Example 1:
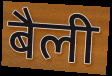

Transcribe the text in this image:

बैली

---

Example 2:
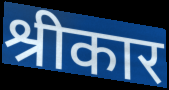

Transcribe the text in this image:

श्रीकार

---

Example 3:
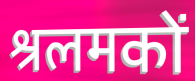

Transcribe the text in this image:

श्रलमकों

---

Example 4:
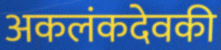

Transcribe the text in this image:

अकलंकदेवकी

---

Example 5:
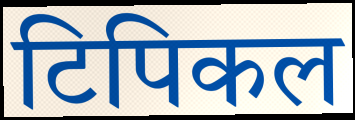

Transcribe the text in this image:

टिपिकल